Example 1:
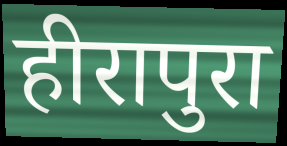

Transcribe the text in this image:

हीरापुरा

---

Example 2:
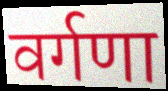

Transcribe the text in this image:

वर्गणा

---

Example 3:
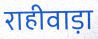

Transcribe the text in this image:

राहीवाड़ा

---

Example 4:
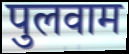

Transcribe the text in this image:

पुलवाम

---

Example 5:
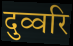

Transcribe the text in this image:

दुव्वरि